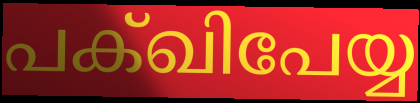
പക്ഖിപേയ്യ